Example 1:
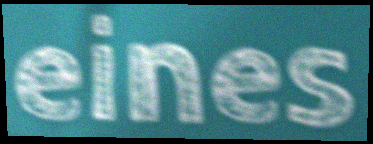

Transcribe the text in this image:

eines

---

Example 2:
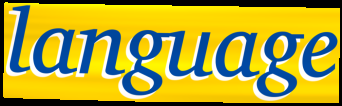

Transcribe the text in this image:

language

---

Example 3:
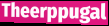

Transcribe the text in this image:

Theerppugal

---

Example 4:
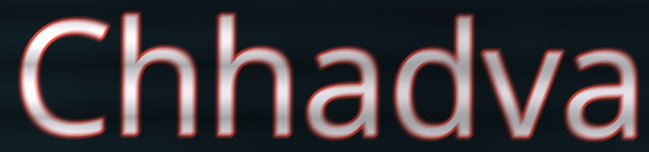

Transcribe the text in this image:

Chhadva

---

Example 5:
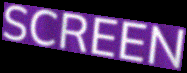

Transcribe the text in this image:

SCREEN